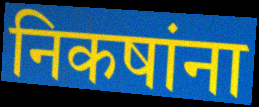
निकषांना